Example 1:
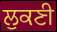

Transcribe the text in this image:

ਲੁਕਣੀ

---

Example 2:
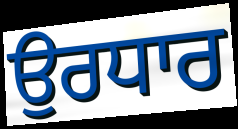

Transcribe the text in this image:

ਉਰਧਾਰ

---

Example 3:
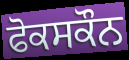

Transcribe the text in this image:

ਫੋਕਸਕੌਨ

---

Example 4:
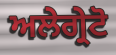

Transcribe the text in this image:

ਅਲੇਗ੍ਰੇਟੋ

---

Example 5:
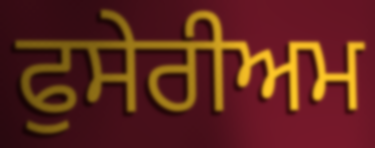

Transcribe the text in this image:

ਫੁਸੇਰੀਅਮ